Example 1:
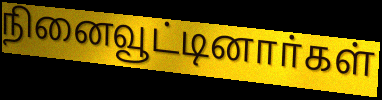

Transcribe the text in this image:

நினைவூட்டினார்கள்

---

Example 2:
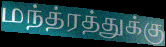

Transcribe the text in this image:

மந்த்ரத்துக்கு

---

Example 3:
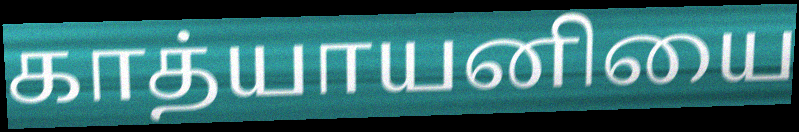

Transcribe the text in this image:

காத்யாயனியை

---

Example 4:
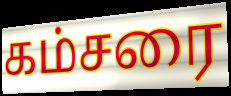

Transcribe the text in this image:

கம்சரை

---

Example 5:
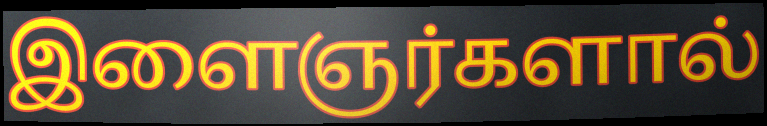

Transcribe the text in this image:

இளைஞர்களால்